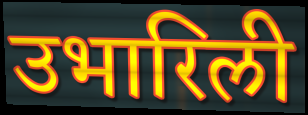
उभारिली